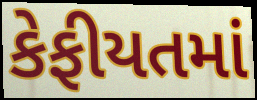
કેફીયતમાં